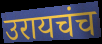
उरायचंच